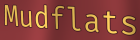
Mudflats